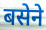
बसेने